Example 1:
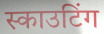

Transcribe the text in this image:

स्काउटिंग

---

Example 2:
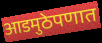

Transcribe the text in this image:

आडमुठेपणात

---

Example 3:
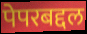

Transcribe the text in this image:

पेपरबद्दल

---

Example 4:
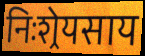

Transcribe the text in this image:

निःश्रेयसाय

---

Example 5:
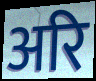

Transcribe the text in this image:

अरि